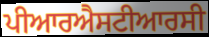
ਪੀਆਰਐਸਟੀਆਰਸੀ